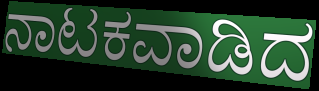
ನಾಟಕವಾಡಿದ